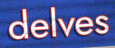
delves